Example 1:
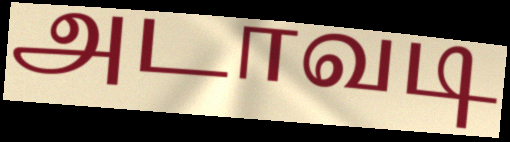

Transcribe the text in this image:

அடாவடி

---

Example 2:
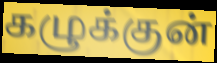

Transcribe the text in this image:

கழுக்குன்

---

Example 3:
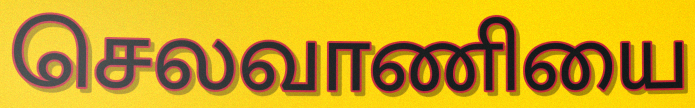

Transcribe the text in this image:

செலவாணியை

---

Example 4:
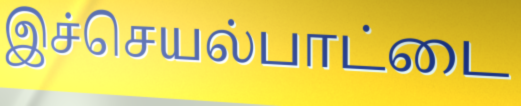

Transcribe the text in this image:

இச்செயல்பாட்டை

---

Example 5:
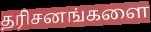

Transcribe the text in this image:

தரிசனங்களை